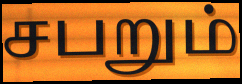
சபறும்